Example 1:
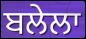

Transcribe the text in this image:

ਬਲੇਲਾ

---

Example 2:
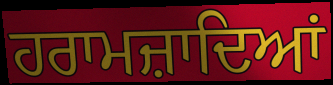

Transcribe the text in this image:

ਹਰਾਮਜ਼ਾਦਿਆਂ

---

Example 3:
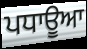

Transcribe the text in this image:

ਪਧਾਊਆ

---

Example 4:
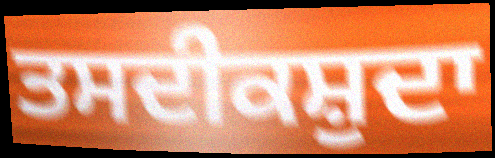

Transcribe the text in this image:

ਤਸਦੀਕਸ਼ੁਦਾ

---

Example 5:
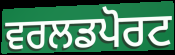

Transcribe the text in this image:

ਵਰਲਡਪੋਰਟ